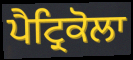
ਪੈਟ੍ਰਿਕੋਲਾ